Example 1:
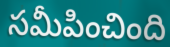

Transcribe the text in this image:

సమీపించింది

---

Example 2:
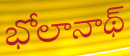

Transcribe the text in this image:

భోలానాథ్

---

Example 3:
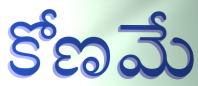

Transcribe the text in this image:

కోణమే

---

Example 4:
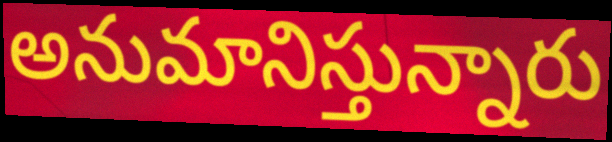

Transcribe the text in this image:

అనుమానిస్తున్నారు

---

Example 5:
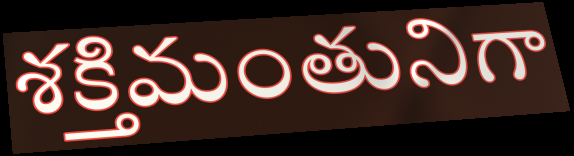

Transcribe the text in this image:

శక్తిమంతునిగా